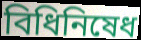
বিধিনিষেধ